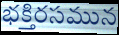
భక్తిరసమున